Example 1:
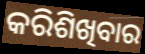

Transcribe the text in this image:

କରିଶିଖିବାର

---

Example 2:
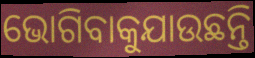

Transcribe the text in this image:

ଭୋଗିବାକୁଯାଉଛନ୍ତି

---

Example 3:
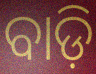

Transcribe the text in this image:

ବାଡ଼ି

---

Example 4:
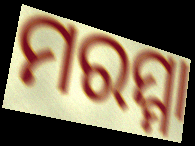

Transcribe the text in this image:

ମରମ୍ମା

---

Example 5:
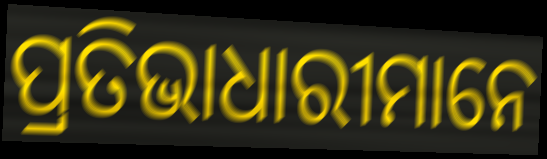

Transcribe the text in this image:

ପ୍ରତିଭାଧାରୀମାନେ